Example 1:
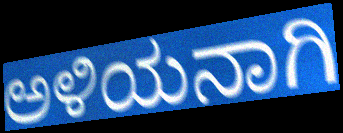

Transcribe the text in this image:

ಅಳಿಯನಾಗಿ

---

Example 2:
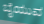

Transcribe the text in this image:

ಬೈಯುವ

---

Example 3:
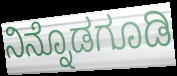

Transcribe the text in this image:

ನಿನ್ನೊಡಗೂಡಿ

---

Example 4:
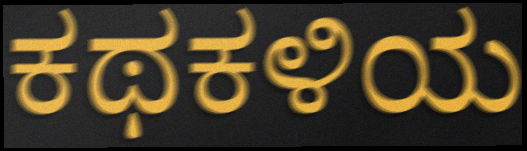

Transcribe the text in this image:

ಕಥಕಳಿಯ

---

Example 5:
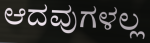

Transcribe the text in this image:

ಆದವುಗಳಲ್ಲ